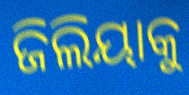
ଜିଲିୟାକୁ